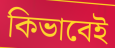
কিভাবেই